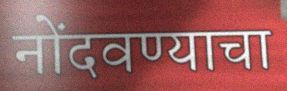
नोंदवण्याचा